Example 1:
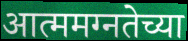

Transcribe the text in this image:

आत्ममग्नतेच्या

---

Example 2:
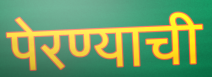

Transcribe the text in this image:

पेरण्याची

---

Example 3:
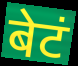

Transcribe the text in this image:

बेटं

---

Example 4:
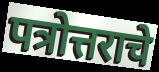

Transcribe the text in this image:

पत्रोत्तराचे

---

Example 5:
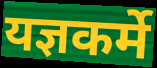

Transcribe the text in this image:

यज्ञकर्मे